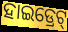
ହାଇଡ୍ରେଟ୍